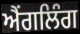
ਐਂਗਲਿੰਗ